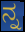
ನ್ನ